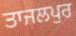
ਤਾਜਲਪੁਰ